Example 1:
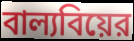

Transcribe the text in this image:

বাল্যবিয়ের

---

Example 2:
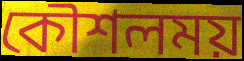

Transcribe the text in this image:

কৌশলময়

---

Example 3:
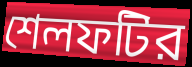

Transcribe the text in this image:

শেলফটির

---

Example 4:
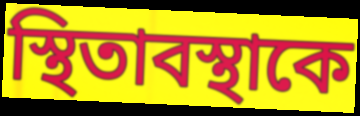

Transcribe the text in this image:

স্থিতাবস্থাকে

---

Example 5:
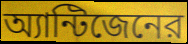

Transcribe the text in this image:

অ্যান্টিজেনের